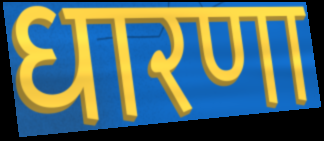
धारणा